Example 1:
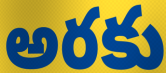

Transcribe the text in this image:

అరకు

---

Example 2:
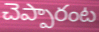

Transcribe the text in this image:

చెప్పారంట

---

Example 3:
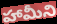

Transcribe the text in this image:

హామీని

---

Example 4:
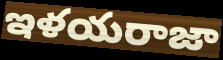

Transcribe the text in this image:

ఇళయరాజా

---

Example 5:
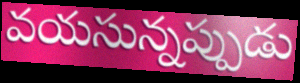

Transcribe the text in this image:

వయసున్నప్పుడు